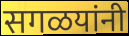
सगळयांनी